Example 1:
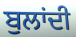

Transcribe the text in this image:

ਬੁਲਾਂਦੀ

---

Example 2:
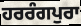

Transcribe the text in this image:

ਹਰਰੰਗਪੁਰਾ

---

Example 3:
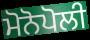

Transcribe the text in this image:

ਮੋਨੋਪੋਲੀ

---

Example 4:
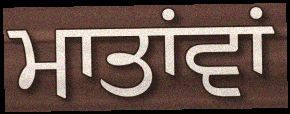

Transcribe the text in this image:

ਮਾਤਾਂਵਾਂ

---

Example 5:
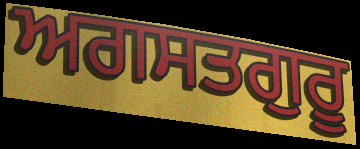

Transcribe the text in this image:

ਅਗਸਤਗੁਰੂ